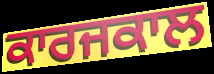
ਕਾਰਜਕਾਲ